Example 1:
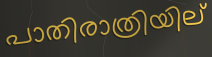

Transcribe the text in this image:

പാതിരാത്രിയില്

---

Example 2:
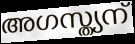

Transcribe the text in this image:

അഗസ്ത്യന്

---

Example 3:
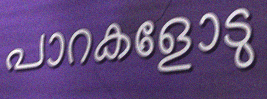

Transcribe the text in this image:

പാറകളോടു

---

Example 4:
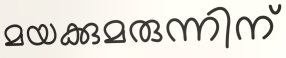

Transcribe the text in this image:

മയക്കുമരുന്നിന്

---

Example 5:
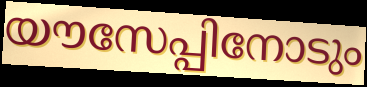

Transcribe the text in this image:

യൗസേപ്പിനോടും